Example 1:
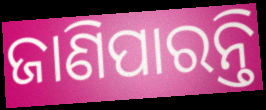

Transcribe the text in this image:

ଜାଣିପାରନ୍ତି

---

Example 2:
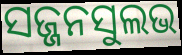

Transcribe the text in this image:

ସଜ୍ଜନସୁଲଭ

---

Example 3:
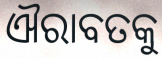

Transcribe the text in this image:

ଐରାବତକୁ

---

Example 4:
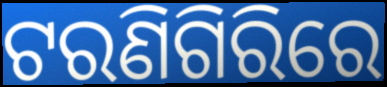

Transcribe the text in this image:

ଟରଣିଗିରିରେ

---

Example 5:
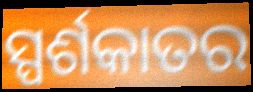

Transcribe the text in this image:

ସ୍ପର୍ଶକାତର